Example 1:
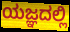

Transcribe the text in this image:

ಯಜ್ಞದಲ್ಲಿ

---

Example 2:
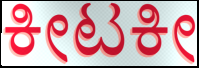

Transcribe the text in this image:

ಕೀಟಕೀ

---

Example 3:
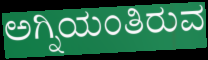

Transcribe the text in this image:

ಅಗ್ನಿಯಂತಿರುವ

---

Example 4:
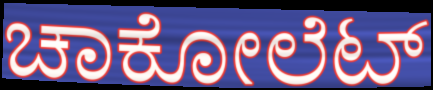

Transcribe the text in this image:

ಚಾಕೋಲೆಟ್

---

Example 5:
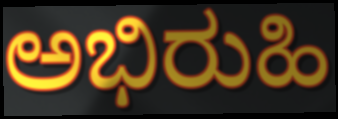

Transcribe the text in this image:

ಅಭಿರುಹಿ